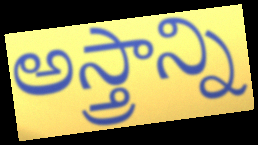
అస్త్రాన్ని